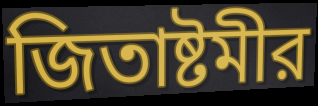
জিতাষ্টমীর